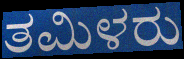
ತಮಿಳರು